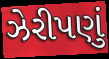
ઝેરીપણું